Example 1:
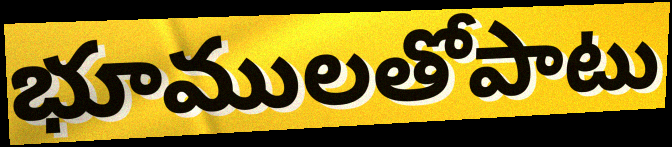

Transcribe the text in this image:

భూములతోపాటు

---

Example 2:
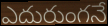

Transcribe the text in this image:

ఎదురుంగనే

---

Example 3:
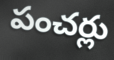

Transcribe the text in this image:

పంచర్లు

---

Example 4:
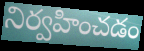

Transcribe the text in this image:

నిర్వహించడం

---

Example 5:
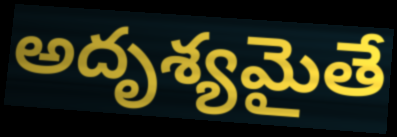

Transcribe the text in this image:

అదృశ్యమైతే